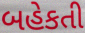
બહેકતી